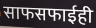
साफसफाईही